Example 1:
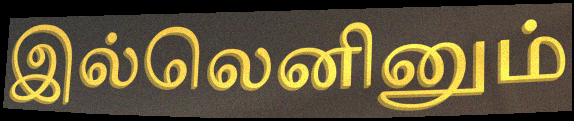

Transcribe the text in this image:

இல்லெனினும்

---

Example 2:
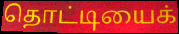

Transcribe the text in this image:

தொட்டியைக்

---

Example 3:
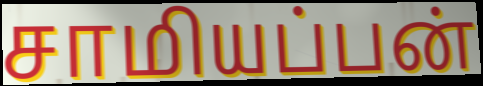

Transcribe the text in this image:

சாமியப்பன்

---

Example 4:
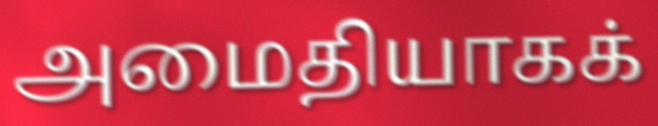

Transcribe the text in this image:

அமைதியாகக்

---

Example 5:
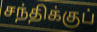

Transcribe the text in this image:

சந்திக்குப்